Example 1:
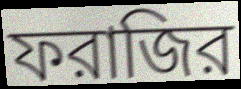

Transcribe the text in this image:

ফরাজির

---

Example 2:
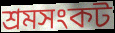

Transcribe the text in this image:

শ্রমসংকট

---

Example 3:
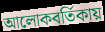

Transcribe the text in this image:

আলোকবর্তিকায়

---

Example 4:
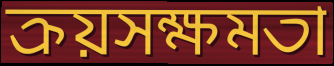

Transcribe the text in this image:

ক্রয়সক্ষমতা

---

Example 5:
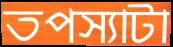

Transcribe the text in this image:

তপস্যাটা